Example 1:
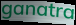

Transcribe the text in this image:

ganatra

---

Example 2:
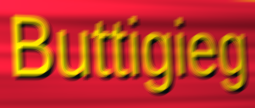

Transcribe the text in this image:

Buttigieg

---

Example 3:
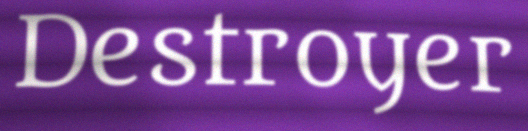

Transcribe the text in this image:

Destroyer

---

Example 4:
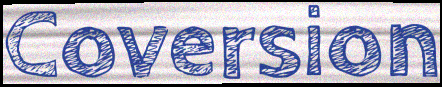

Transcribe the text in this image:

Coversion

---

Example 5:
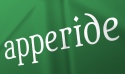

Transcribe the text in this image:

apperide